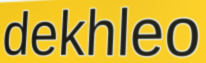
dekhleo